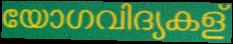
യോഗവിദ്യകള്